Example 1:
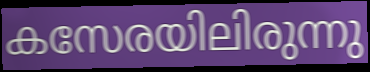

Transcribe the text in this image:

കസേരയിലിരുന്നു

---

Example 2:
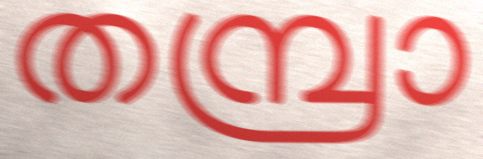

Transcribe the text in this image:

തമ്പ്രാ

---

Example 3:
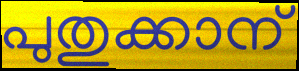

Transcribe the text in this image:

പുതുക്കാന്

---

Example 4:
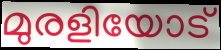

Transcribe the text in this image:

മുരളിയോട്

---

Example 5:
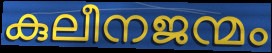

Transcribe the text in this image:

കുലീനജന്മം